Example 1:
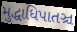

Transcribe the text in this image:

મુદ્ધાધિપાતઞ્ચ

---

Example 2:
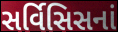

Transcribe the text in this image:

સર્વિસિસનાં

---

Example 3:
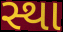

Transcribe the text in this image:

સ્થા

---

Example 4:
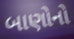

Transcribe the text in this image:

બાણોનો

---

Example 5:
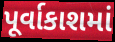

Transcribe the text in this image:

પૂર્વાકાશમાં